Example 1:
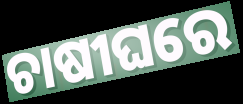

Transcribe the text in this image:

ଚାଷୀଘରେ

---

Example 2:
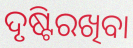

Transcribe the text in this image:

ଦୃଷ୍ଟିରଖିବା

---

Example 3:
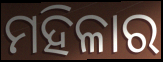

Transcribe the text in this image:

ମହିଳାର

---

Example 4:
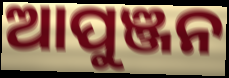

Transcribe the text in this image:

ଆପୁଞ୍ଜନ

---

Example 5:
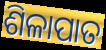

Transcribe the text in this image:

ଶିଳାପାତ